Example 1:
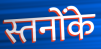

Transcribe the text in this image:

स्तनोंके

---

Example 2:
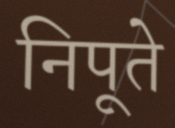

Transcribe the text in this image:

निपूते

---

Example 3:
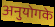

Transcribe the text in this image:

अनुयोगके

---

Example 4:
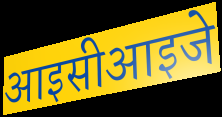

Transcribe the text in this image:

आइसीआइजे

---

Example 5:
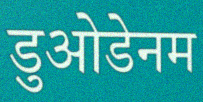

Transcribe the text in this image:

डुओडेनम